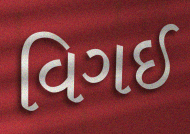
વિગઈ